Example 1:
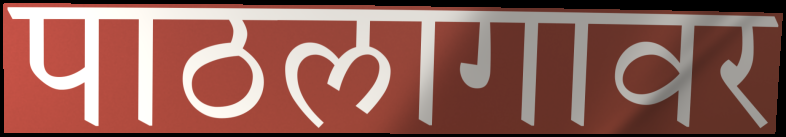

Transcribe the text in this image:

पाठलागावर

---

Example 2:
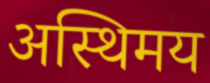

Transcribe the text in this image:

अस्थिमय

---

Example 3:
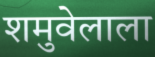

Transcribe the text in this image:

शमुवेलाला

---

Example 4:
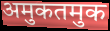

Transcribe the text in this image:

अमुकतमुक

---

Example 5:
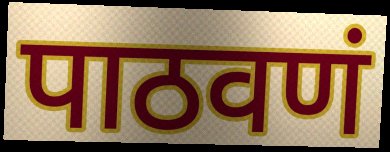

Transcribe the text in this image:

पाठवणं